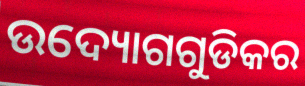
ଉଦ୍ୟୋଗଗୁଡିକର